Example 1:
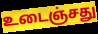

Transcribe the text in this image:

உடைஞ்சது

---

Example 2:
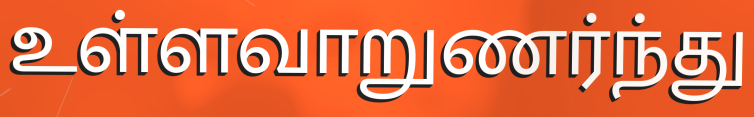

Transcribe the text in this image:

உள்ளவாறுணர்ந்து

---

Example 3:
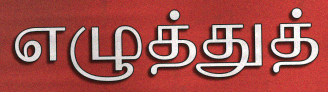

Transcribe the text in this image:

எழுத்துத்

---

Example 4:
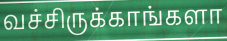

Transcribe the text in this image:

வச்சிருக்காங்களா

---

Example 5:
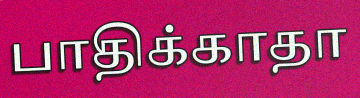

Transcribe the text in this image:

பாதிக்காதா